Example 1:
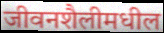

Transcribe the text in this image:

जीवनशैलीमधील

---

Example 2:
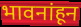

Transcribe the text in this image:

भावनांहून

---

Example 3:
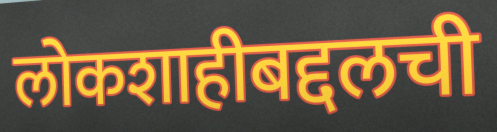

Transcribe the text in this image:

लोकशाहीबद्दलची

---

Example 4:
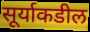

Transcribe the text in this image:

सूर्याकडील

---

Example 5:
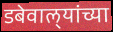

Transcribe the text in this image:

डबेवाल्यांच्या